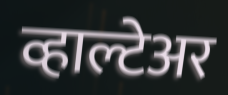
व्हाल्टेअर